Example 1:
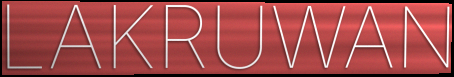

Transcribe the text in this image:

LAKRUWAN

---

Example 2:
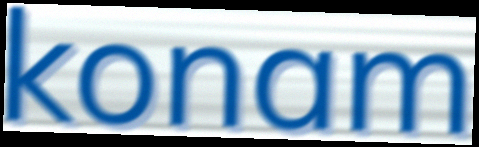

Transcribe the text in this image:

konam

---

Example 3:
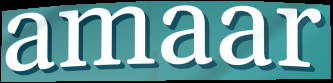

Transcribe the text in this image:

amaar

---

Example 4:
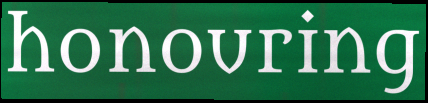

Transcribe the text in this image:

honouring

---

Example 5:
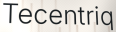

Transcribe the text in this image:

Tecentriq